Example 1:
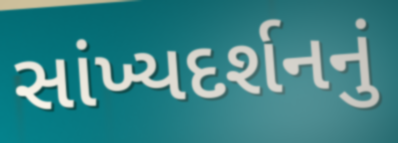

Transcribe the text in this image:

સાંખ્યદર્શનનું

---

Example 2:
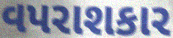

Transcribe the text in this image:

વપરાશકાર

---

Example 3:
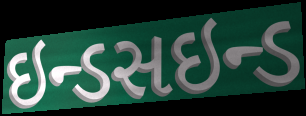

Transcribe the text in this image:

ઇન્ડસઇન્ડ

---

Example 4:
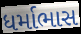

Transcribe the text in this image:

ધર્માભાસ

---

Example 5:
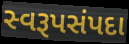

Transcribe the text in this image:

સ્વરૂપસંપદા